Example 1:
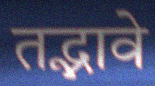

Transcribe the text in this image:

तद्भावे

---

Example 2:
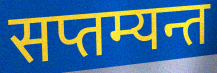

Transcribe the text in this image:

सप्तम्यन्त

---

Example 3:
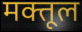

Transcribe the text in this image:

मक्तूल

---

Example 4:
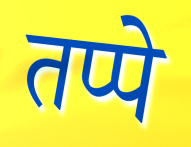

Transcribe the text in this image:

तप्पे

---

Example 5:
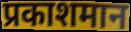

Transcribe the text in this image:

प्रकाशमान